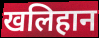
खलिहान